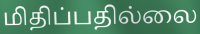
மிதிப்பதில்லை